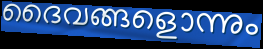
ദൈവങ്ങളൊന്നും